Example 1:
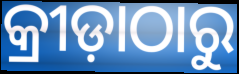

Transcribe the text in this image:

କ୍ରୀଡ଼ାଠାରୁ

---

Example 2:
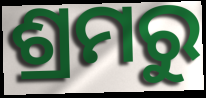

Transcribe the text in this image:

ଶ୍ରମରୁ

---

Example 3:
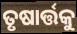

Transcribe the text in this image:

ତୃଷାର୍ତ୍ତକୁ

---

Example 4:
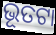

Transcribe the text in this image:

ଭୂତଟା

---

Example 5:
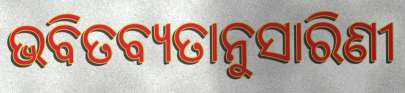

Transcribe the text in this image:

ଭବିତବ୍ୟତାନୁସାରିଣୀ